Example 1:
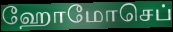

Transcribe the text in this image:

ஹோமோசெப்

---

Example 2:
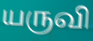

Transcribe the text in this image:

யருவி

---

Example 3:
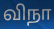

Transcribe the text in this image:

விநா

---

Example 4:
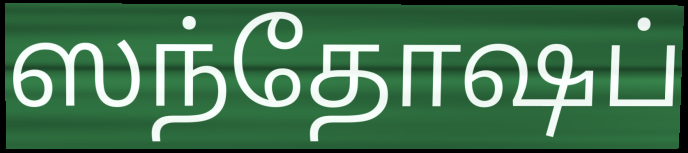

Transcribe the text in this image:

ஸந்தோஷப்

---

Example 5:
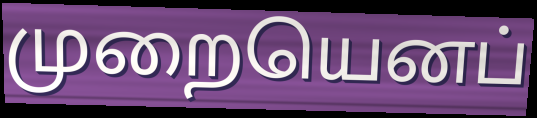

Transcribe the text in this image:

முறையெனப்